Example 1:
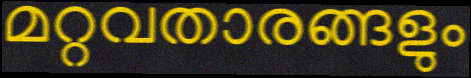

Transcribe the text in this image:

മറ്റവതാരങ്ങളും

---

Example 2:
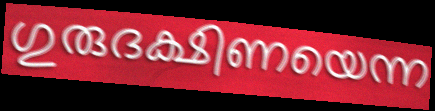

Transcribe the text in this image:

ഗുരുദക്ഷിണയെന്ന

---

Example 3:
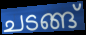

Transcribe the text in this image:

ചടങ്ങ്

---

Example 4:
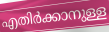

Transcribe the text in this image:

എതിർക്കാനുള്ള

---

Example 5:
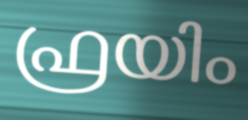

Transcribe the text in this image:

ഫ്രയിം